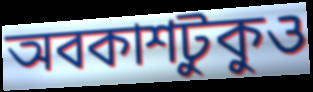
অবকাশটুকুও